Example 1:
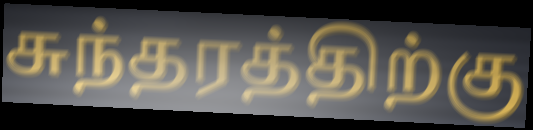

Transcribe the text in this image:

சுந்தரத்திற்கு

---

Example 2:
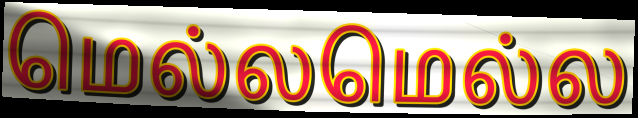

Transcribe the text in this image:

மெல்லமெல்ல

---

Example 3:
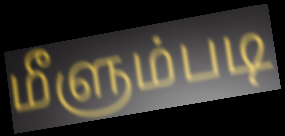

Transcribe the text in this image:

மீளும்படி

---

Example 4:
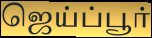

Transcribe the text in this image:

ஜெய்ப்பூர்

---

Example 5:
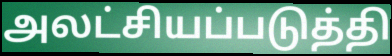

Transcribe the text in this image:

அலட்சியப்படுத்தி